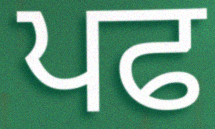
ਪਫ